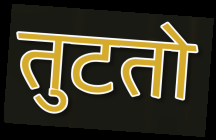
तुटतो